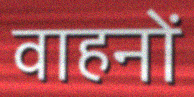
वाहनों